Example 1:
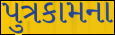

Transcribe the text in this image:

પુત્રકામના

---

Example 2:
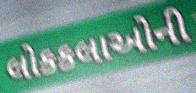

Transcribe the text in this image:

લોકકલાઓની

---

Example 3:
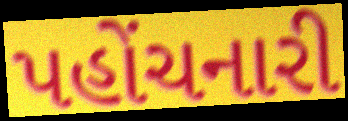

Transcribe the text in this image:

પહોંચનારી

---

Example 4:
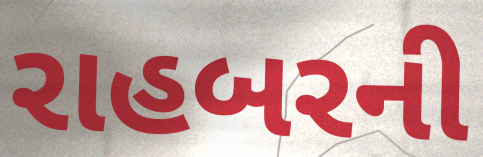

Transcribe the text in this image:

રાહબરની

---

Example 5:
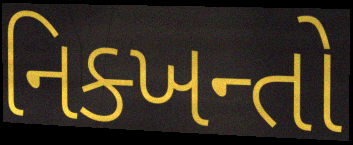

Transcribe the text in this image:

નિક્ખન્તો